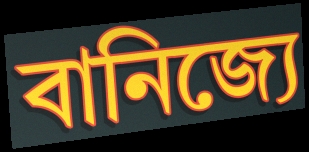
বানিজ্যে